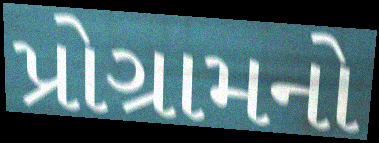
પ્રોગ્રામનો